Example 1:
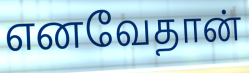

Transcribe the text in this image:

எனவேதான்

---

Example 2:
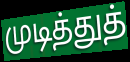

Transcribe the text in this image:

முடித்துத்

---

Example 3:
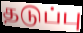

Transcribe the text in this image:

தடுப்பு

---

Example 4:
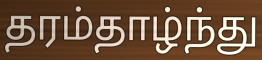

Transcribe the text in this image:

தரம்தாழ்ந்து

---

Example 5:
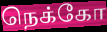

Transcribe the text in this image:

நெக்கோ